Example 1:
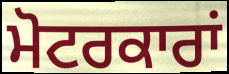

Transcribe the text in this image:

ਮੋਟਰਕਾਰਾਂ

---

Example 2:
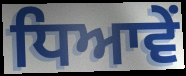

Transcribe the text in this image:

ਧਿਆਵੇਂ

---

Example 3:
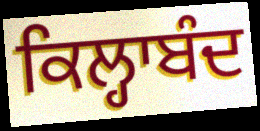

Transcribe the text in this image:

ਕਿਲ੍ਹਾਬੰਦ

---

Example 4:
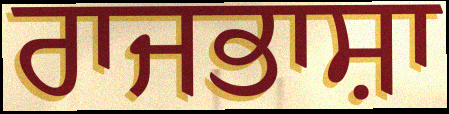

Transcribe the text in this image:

ਰਾਜਭਾਸ਼ਾ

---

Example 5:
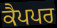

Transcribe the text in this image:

ਕੈਪਪਰ